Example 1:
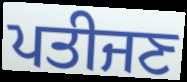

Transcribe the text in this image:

ਪਤੀਜਣ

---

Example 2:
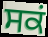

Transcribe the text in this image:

ਸਕਂ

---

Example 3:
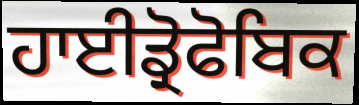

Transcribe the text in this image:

ਹਾਈਡ੍ਰੋਫੋਬਿਕ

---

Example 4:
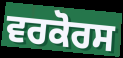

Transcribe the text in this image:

ਵਰਕੋਰਸ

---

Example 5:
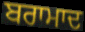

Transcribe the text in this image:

ਬਰਾਮਾਦ